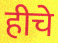
हीचे